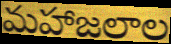
మహాజలాల